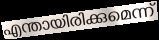
എന്തായിരിക്കുമെന്ന്